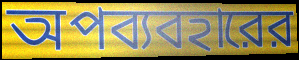
অপব্যবহারের